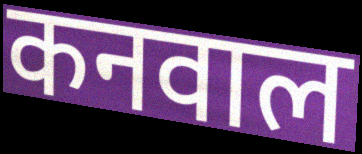
कनवाल